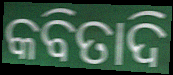
କବିତାଦି